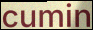
cumin